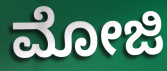
ಮೋಜಿ